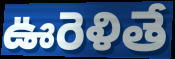
ఊరెళితే